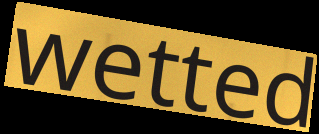
wetted